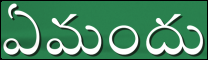
ఏమందు